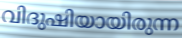
വിദുഷിയായിരുന്ന